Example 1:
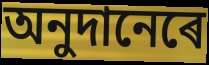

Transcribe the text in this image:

অনুদানেৰে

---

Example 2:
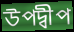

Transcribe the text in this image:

উপদ্বীপ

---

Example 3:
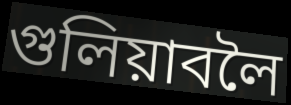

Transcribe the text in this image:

গুলিয়াবলৈ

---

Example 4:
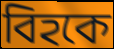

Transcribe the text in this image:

বিহকে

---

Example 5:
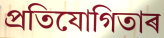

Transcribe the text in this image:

প্ৰতিযোগিতাৰ